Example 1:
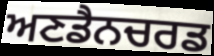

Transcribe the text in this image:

ਅਣਡੈਨਚਰਡ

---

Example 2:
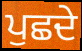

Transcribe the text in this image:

ਪੁਛਦੇ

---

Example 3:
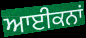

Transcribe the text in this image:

ਆਈਕਨਾਂ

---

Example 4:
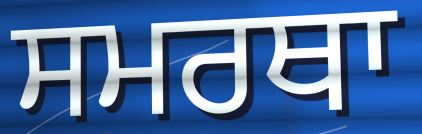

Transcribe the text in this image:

ਸਮਰਥਾ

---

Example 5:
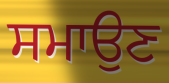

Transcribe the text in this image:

ਸਮਾਉਣ